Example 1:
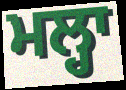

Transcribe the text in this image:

ਮਲ੍ਹਾ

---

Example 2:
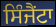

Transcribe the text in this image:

ਸਿੰਜੈਂਟਾ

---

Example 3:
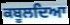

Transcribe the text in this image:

ਕਬੂਲਦਿਆ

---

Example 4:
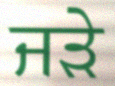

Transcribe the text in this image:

ਜੜੇ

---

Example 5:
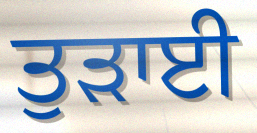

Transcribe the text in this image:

ਤੁੜਾਈ